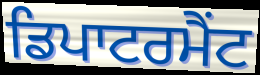
ਡਿਪਾਟਰਮੈਂਟ